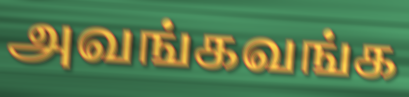
அவங்கவங்க